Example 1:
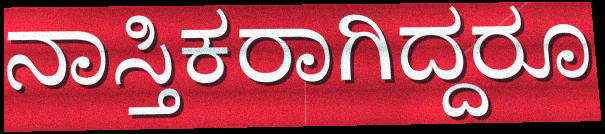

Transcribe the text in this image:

ನಾಸ್ತಿಕರಾಗಿದ್ದರೂ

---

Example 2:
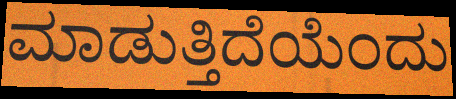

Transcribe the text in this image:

ಮಾಡುತ್ತಿದೆಯೆಂದು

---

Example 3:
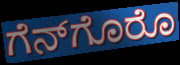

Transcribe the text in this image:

ಗೆನ್‌ಗೊರೊ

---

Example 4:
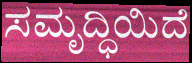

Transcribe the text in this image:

ಸಮೃದ್ಧಿಯಿದೆ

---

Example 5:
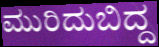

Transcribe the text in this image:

ಮುರಿದುಬಿದ್ದ